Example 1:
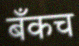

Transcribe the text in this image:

बँकच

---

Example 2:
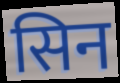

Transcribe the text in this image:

सिन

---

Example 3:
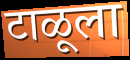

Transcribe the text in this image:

टाळूला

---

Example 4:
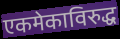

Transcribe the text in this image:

एकमेकाविरुद्ध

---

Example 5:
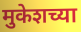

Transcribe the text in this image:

मुकेशच्या